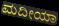
ಮದೀಯಾ